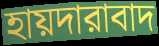
হায়দারাবাদ